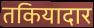
तकियादार